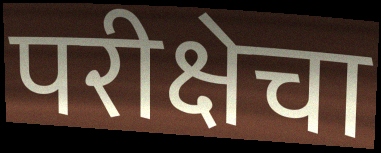
परीक्षेचा